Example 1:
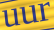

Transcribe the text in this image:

uur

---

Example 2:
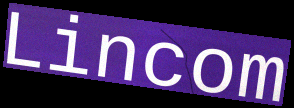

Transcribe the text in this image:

Lincom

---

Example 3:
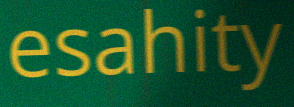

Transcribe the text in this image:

esahity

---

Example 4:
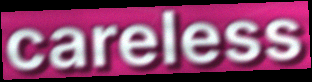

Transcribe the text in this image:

careless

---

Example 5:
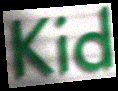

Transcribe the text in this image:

Kid